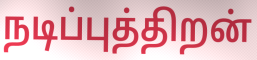
நடிப்புத்திறன்